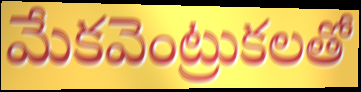
మేకవెంట్రుకలతో